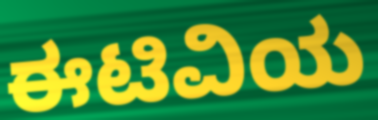
ಈಟಿವಿಯ